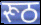
रूठ